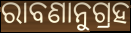
ରାବଣାନୁଗ୍ରହ